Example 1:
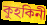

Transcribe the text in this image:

কুহকিনী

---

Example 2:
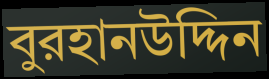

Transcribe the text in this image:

বুরহানউদ্দিন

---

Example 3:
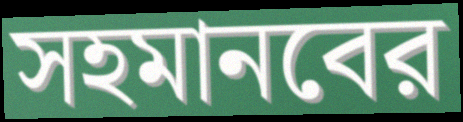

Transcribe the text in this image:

সহমানবের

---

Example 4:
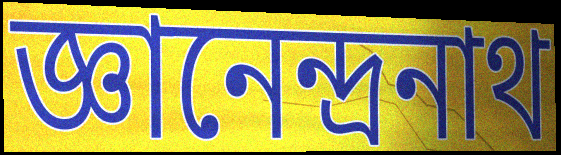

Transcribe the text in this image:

জ্ঞানেন্দ্রনাথ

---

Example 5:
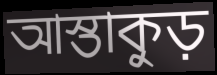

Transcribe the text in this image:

আস্তাকুড়